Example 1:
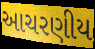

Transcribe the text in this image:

આચરણીય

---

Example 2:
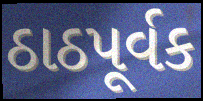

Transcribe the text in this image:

ઠાઠપૂર્વક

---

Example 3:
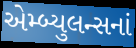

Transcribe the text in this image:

એમ્બ્યુલન્સનાં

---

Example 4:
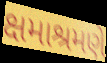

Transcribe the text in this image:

ક્ષમાશ્રમણે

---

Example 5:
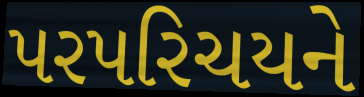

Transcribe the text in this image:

પરપરિચયને